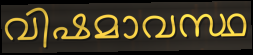
വിഷമാവസ്ഥ